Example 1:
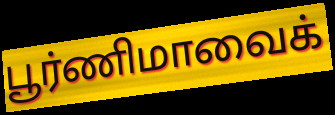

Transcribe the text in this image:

பூர்ணிமாவைக்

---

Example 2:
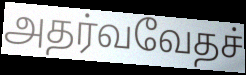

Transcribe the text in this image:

அதர்வவேதச்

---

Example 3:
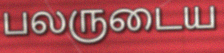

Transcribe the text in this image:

பலருடைய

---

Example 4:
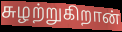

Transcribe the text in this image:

சுழற்றுகிறான்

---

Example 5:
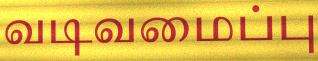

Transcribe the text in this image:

வடிவமைப்பு